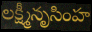
లక్ష్మీనృసింహ